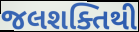
જલશક્તિથી